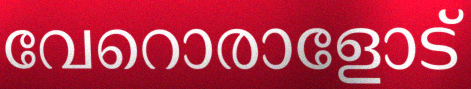
വേറൊരാളോട്